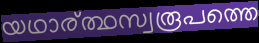
യഥാര്ത്ഥസ്വരൂപത്തെ